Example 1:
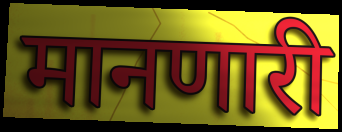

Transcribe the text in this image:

मानणारी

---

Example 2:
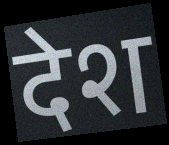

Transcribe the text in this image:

देश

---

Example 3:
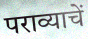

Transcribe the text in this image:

पराव्याचें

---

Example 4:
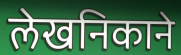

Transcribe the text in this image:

लेखनिकाने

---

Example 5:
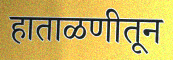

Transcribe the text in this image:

हाताळणीतून